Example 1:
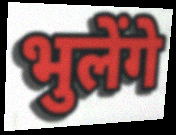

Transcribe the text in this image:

भुलेंगे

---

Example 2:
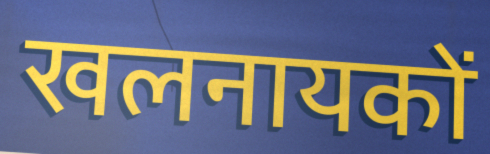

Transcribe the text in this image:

खलनायकों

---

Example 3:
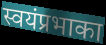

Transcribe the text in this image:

स्वयंप्रभाका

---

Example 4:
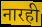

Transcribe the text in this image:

नारही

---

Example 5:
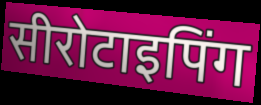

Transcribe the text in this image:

सीरोटाइपिंग